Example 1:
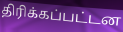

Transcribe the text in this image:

திரிக்கப்பட்டன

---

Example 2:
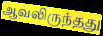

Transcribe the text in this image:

ஆவலிருந்தது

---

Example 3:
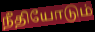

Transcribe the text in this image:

நீதியோடும்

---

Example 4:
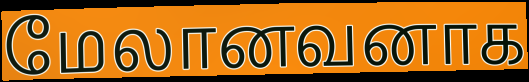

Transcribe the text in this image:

மேலானவனாக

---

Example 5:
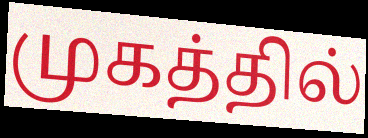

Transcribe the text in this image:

முகத்தில்